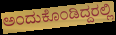
ಅಂದುಕೊಂಡಿದ್ದರಲ್ಲಿ